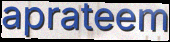
aprateem